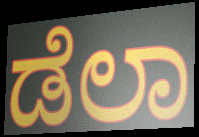
ಡೆಲಾ